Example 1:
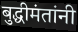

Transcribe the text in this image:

बुद्धीमंतांनी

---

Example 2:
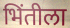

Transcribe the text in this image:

भिंतीला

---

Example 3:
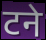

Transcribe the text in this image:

टने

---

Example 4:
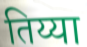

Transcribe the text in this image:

तिय्या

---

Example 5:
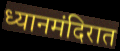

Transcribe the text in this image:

ध्यानमंदिरात